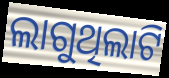
ଲାଗୁଥିଲାଟି